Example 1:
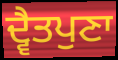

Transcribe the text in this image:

ਦ੍ਵੈਤਪੁਣਾ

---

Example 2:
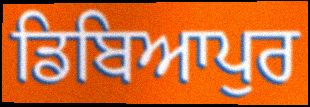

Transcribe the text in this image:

ਡਿਬਿਆਪੁਰ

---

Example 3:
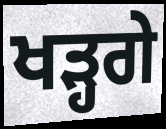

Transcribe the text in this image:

ਖੜ੍ਹਗੇ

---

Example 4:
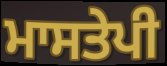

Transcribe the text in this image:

ਮਾਸਤੇਪੀ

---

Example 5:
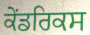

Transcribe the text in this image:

ਕੇਂਡਰਿਕਸ